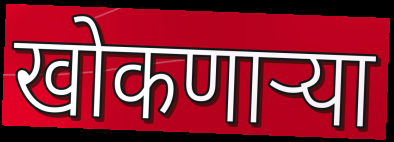
खोकणाऱ्या